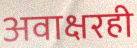
अवाक्षरही